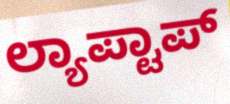
ಲ್ಯಾಪ್ಟಾಪ್